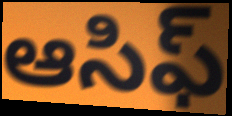
ఆసిఫ్